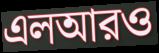
এলআরও